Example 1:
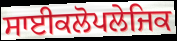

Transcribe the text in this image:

ਸਾਈਕਲੋਪਲੇਜਿਕ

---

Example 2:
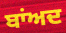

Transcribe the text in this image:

ਬਾਂਅਦ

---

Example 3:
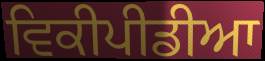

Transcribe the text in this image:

ਵਿਕੀਪੀਡੀਆ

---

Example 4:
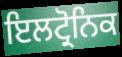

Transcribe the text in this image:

ਇਲਟ੍ਰੋਨਿਕ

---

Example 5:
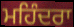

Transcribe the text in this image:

ਮਹਿੰਦਰਾ